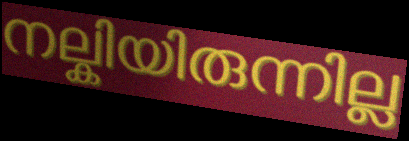
നല്കിയിരുന്നില്ല